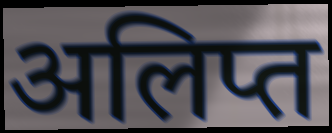
अलिप्त